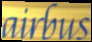
airbus